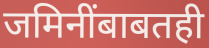
जमिनींबाबतही